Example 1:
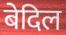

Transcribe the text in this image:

बेदिल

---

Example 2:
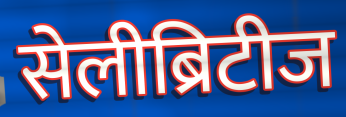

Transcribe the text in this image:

सेलीब्रिटीज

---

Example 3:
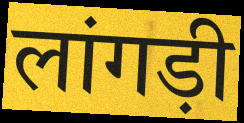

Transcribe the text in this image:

लांगड़ी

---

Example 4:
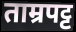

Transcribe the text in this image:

ताम्रपट्ट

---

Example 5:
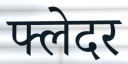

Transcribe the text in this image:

फ्लेदर